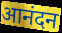
आनंदन